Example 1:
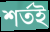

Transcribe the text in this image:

শর্তই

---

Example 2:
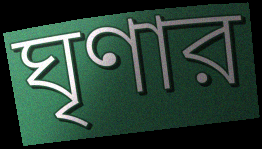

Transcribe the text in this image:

ঘৃণার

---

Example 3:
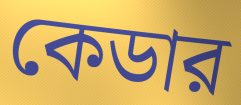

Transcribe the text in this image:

কেডার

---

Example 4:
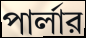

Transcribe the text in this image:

পার্লার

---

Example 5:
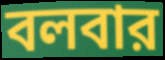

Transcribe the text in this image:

বলবার